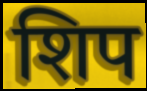
शिप